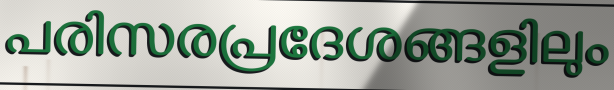
പരിസരപ്രദേശങ്ങളിലും